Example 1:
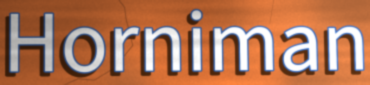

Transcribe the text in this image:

Horniman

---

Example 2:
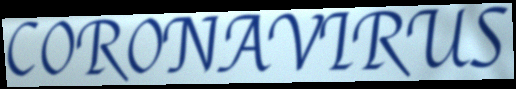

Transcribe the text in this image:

CORONAVIRUS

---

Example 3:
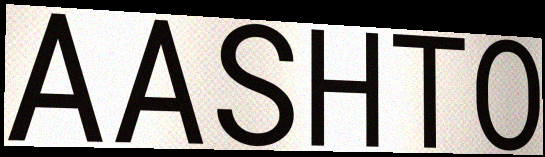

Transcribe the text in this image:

AASHTO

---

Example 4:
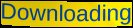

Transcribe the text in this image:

Downloading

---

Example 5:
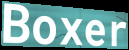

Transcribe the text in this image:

Boxer